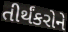
તીર્થંકરોને